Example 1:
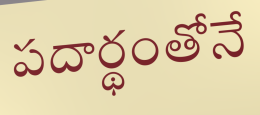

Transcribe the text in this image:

పదార్థంతోనే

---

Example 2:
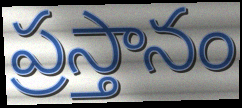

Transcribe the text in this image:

ప్రస్తానం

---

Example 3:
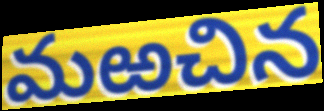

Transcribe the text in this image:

మఱచిన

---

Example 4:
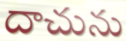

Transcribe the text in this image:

దాచును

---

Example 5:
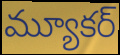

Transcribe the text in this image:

మ్యూకర్